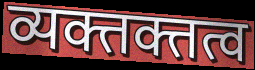
व्यक्तक्तत्व